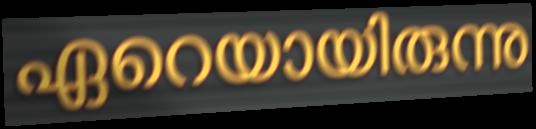
ഏറെയായിരുന്നു